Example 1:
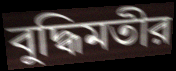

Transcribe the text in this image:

বুদ্ধিমতীর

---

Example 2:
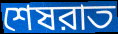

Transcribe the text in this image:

শেষরাত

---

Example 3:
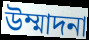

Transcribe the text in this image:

উম্মাদনা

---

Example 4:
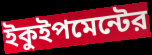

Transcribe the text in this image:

ইকুইপমেন্টের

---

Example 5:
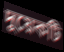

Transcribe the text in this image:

দুয়েকটি